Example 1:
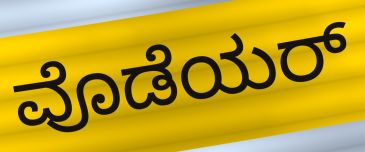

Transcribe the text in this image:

ವೊಡೆಯರ್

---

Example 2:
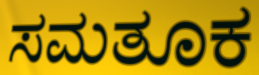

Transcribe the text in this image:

ಸಮತೂಕ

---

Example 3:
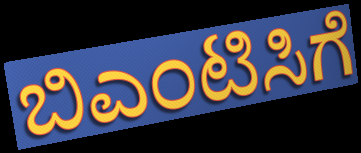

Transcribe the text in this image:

ಬಿಎಂಟಿಸಿಗೆ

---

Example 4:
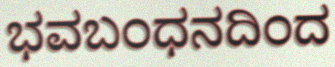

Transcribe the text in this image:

ಭವಬಂಧನದಿಂದ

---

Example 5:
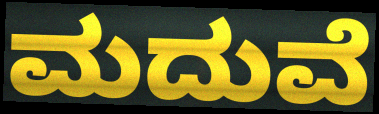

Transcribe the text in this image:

ಮದುವೆ